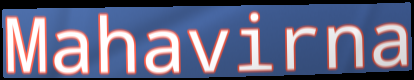
Mahavirna